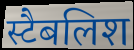
स्टैबलिश